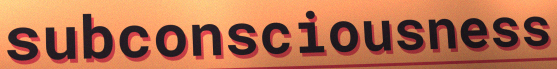
subconsciousness